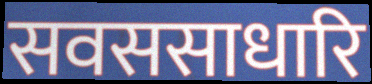
सवससाधारि